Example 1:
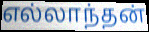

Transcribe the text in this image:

எல்லாந்தன்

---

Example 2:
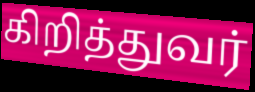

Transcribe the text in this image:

கிறித்துவர்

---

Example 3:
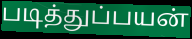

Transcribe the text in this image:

படித்துப்பயன்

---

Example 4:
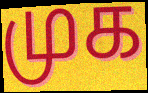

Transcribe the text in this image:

முக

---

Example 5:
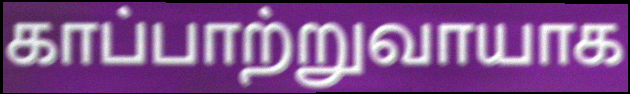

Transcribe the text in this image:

காப்பாற்றுவாயாக